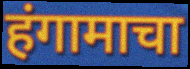
हंगामाचा